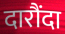
दारौंदा